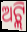
ଅଟ୍ଲି